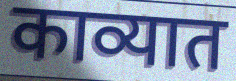
काव्यात